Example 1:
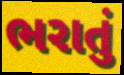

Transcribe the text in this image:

ભરાતું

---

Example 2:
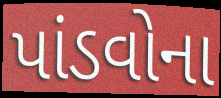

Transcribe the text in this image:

પાંડવોના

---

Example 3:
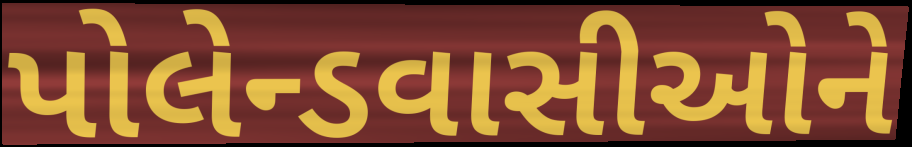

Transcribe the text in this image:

પોલેન્ડવાસીઓને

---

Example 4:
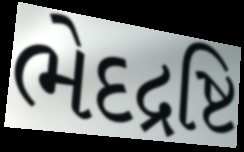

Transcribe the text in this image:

ભેદદ્રષ્ટિ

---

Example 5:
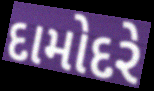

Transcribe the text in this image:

દામોદરે